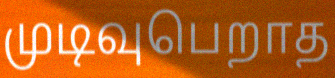
முடிவுபெறாத